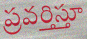
ప్రవర్తిస్తూ